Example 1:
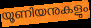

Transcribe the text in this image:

യൂണിയനുകളും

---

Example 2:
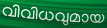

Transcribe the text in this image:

വിവിധവുമായ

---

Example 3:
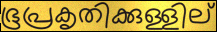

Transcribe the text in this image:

ഭൂപ്രകൃതിക്കുള്ളില്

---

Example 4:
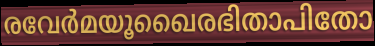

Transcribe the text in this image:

രവേർമയൂഖൈരഭിതാപിതോ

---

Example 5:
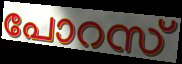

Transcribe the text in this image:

പോറസ്